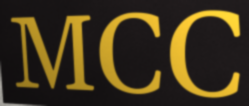
MCC